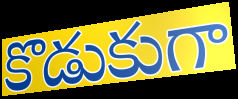
కొడుకుగా